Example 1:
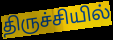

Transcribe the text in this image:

திருச்சியில்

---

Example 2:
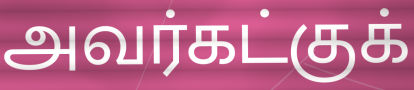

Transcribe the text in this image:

அவர்கட்குக்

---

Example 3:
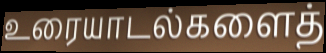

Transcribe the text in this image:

உரையாடல்களைத்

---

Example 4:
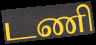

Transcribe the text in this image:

டணி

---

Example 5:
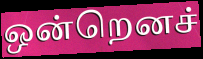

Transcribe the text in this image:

ஒன்றெனச்